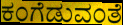
ಕಂಗೆಡುವಂತೆ